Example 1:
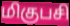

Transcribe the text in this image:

மிகுபசி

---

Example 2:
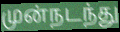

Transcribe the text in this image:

முன்நடந்து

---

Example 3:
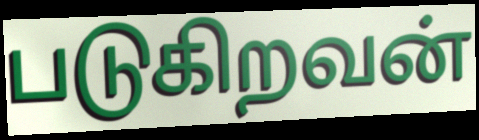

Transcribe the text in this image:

படுகிறவன்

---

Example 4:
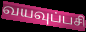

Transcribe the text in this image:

வயவுப்பசி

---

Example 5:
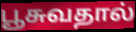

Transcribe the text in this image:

பூசுவதால்